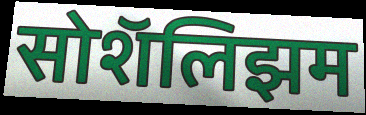
सोशॅलिझम